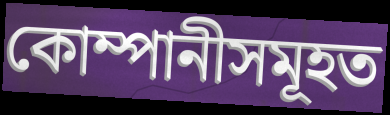
কোম্পানীসমূহত